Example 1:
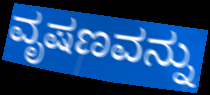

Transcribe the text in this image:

ವೃಷಣವನ್ನು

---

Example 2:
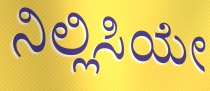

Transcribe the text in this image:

ನಿಲ್ಲಿಸಿಯೇ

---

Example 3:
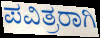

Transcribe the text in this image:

ಪವಿತ್ರರಾಗಿ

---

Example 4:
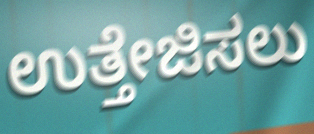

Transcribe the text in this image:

ಉತ್ತೇಜಿಸಲು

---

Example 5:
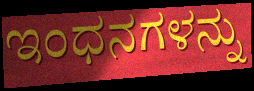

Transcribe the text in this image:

ಇಂಧನಗಳನ್ನು